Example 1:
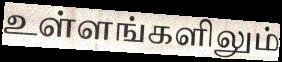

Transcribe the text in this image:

உள்ளங்களிலும்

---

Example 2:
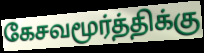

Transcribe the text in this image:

கேசவமூர்த்திக்கு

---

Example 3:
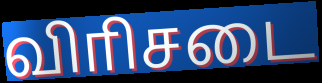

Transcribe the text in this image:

விரிசடை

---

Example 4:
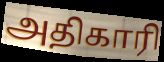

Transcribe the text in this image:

அதிகாரி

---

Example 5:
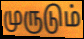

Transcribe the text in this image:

முருடும்